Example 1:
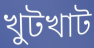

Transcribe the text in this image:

খুটখাট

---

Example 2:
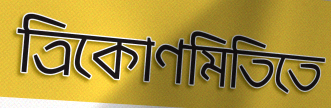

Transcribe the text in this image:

ত্রিকোণমিতিতে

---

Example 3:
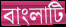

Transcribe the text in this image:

বাংলাটি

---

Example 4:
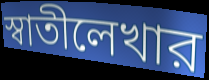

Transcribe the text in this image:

স্বাতীলেখার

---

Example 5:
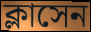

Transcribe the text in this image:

ক্লাসেন